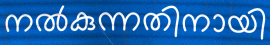
നൽകുന്നതിനായി